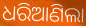
ଧରିଆଣିଲା